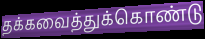
தக்கவைத்துக்கொண்டு